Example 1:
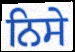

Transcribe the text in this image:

ਨਿਸੇ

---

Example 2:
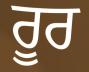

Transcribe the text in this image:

ਰੂਰ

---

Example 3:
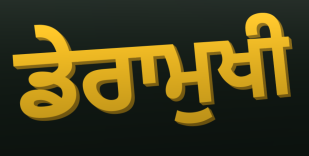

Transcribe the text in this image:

ਡੇਰਾਮੁਖੀ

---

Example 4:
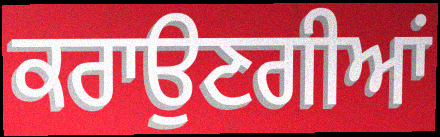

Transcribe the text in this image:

ਕਰਾਉਣਗੀਆਂ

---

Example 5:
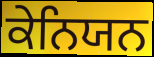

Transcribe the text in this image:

ਕੇਨਿਯਨ